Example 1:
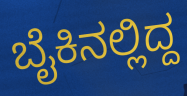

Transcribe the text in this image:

ಬೈಕಿನಲ್ಲಿದ್ದ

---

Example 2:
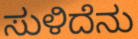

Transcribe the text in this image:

ಸುಳಿದೆನು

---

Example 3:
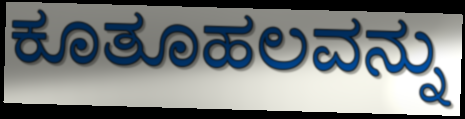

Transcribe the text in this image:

ಕೂತೂಹಲವನ್ನು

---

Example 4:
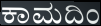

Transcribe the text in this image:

ಕಾಮದಿಂ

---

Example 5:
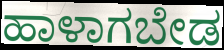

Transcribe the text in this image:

ಹಾಳಾಗಬೇಡ